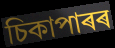
চিকাপাৰৰ